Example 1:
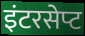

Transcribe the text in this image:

इंटरसेप्‍ट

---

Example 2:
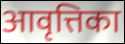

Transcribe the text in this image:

आवृत्तिका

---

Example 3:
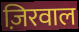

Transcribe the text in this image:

ज़िरवाल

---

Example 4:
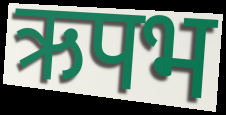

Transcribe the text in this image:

ऋपभ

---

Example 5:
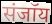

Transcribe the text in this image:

संजॉय